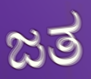
ಜತ